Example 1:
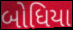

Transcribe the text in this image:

બોધિયા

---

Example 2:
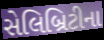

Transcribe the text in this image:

સેલિબ્રિટીના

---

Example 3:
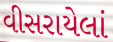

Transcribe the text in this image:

વીસરાયેલાં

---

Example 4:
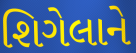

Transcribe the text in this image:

શિગેલાને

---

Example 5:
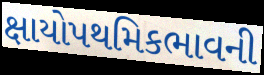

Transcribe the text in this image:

ક્ષાયોપથમિકભાવની